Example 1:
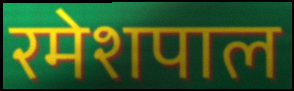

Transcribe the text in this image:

रमेशपाल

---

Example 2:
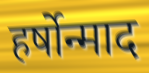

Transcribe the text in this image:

हर्षोन्माद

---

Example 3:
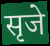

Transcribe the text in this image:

सृजे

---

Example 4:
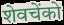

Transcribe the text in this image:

शेवचेंको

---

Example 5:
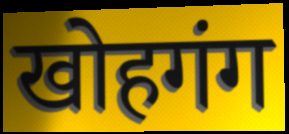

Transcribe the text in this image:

खोहगंग